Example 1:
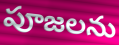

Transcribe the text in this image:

పూజలను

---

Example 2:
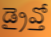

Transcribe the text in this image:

డ్రైవ్తో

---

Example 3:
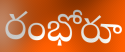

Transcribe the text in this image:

రంభోరూ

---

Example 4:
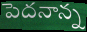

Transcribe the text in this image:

పెదనాన్న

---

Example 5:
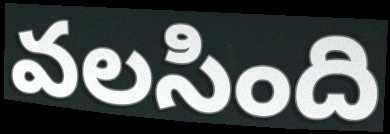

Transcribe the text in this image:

వలసింది